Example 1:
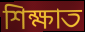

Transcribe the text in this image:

শিক্ষাত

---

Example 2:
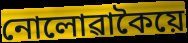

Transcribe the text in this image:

নোলোৱাকৈয়ে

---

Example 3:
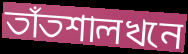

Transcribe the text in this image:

তাঁতশালখনে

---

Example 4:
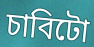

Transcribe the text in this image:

চাবিটো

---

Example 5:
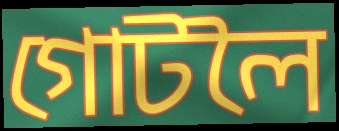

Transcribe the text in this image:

গোটলৈ